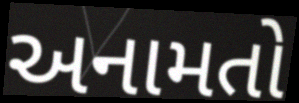
અનામતો